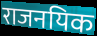
राजनयिक